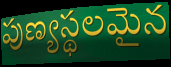
పుణ్యస్థలమైన